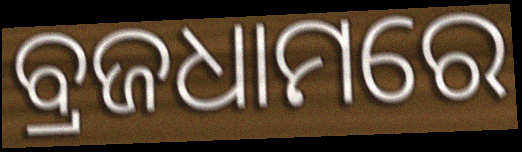
ବ୍ରଜଧାମରେ